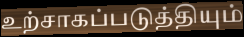
உற்சாகப்படுத்தியும்